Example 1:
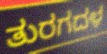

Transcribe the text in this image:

ತುರಗದಳ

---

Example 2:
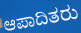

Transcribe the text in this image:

ಆಪಾದಿತರು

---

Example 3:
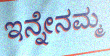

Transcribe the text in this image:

ಇನ್ನೇನಮ್ಮ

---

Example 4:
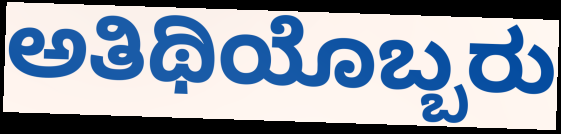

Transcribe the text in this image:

ಅತಿಥಿಯೊಬ್ಬರು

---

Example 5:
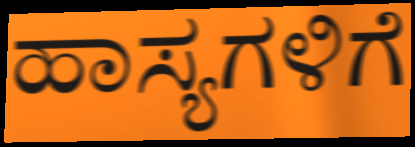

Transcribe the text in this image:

ಹಾಸ್ಯಗಳಿಗೆ